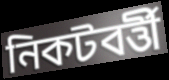
নিকটবর্ত্তী